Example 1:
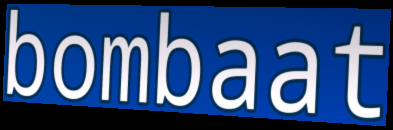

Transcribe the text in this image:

bombaat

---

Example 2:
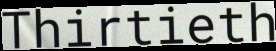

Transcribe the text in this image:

Thirtieth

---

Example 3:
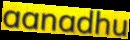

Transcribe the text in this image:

aanadhu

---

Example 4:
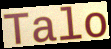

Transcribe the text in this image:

Talo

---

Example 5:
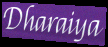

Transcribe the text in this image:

Dharaiya